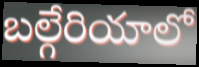
బల్గేరియాలో